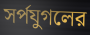
সর্পযুগলের